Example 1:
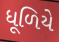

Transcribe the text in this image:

ધૂળિયે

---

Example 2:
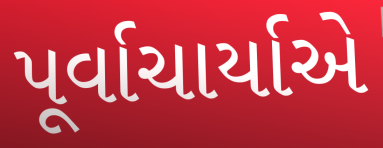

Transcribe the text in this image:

પૂર્વાચાર્યાએ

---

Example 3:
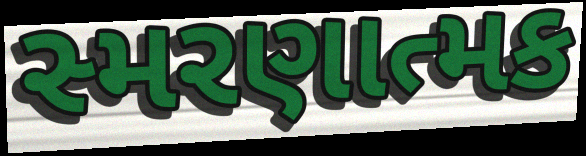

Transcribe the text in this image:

સ્મરણાત્મક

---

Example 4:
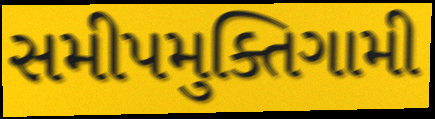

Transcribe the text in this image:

સમીપમુક્તિગામી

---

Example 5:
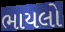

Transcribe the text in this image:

ભાયલો